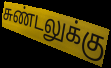
சுண்டலுக்கு